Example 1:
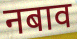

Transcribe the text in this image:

नबाव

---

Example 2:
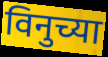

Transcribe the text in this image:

विनुच्या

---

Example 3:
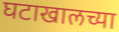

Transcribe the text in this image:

घटाखालच्या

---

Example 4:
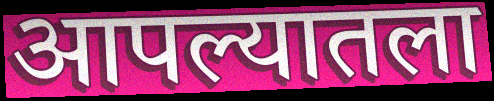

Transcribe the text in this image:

आपल्यातला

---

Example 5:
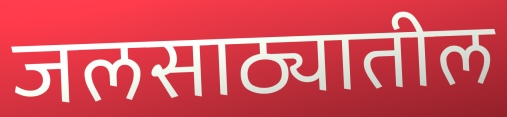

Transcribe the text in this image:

जलसाठ्यातील